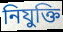
নিযুক্তি